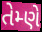
તેમ્ણે